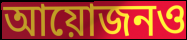
আয়োজনও